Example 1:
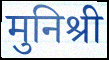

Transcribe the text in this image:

मुनिश्री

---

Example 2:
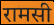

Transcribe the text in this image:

रामसी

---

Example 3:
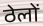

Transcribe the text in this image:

ठेलों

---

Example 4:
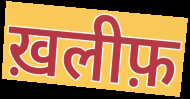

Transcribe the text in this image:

ख़लीफ़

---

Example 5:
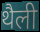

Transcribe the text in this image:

थैली